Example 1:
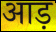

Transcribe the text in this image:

आड़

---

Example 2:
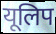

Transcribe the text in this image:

यूलिप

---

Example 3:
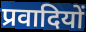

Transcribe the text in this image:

प्रवादियों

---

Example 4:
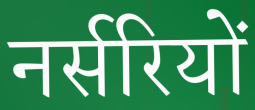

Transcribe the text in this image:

नर्सरियों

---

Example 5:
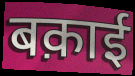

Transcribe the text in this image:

बक़ाई